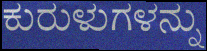
ಕುರುಳುಗಳನ್ನು